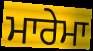
ਮਾਰੇਮਾ